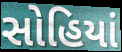
સોહિયાં